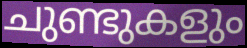
ചുണ്ടുകളും